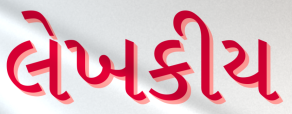
લેખકીય